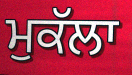
ਮੁਕੱਲਾ